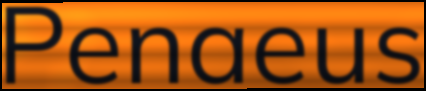
Penaeus